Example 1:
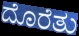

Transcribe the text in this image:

ದೊರೆತು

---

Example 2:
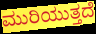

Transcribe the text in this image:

ಮುರಿಯುತ್ತದೆ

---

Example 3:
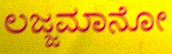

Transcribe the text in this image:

ಲಜ್ಜಮಾನೋ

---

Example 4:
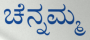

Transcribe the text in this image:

ಚೆನ್ನಮ್ಮ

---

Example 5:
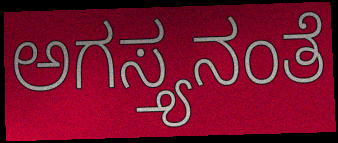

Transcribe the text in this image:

ಅಗಸ್ತ್ಯನಂತೆ